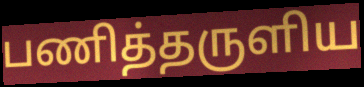
பணித்தருளிய